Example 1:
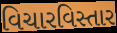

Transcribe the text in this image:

વિચારવિસ્તાર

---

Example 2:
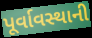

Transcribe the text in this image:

પૂર્વાવસ્થાની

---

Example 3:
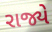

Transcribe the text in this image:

રાજ્યે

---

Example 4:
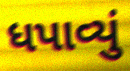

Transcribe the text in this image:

ધપાવ્યું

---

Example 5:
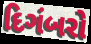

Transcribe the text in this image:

દિગંબરો